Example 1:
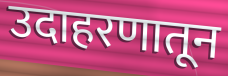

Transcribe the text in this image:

उदाहरणातून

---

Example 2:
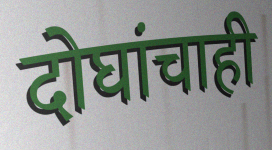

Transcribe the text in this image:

दोघांचाही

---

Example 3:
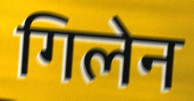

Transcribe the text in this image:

गिलेन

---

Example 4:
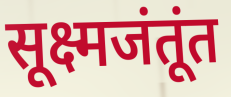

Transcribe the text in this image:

सूक्ष्मजंतूंत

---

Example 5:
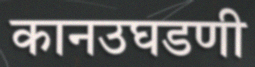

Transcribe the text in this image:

कानउघडणी